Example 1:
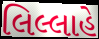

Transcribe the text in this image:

લિલ્લાહે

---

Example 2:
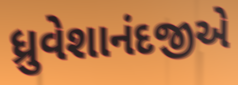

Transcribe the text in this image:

ધ્રુવેશાનંદજીએ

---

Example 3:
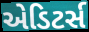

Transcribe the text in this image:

એડિટર્સ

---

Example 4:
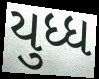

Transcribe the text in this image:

યુધ્ધ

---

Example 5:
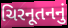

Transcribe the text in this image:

ચિરનૂતનનું